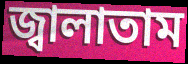
জ্বালাতাম